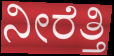
ನೀರೆತ್ತಿ